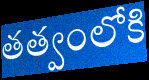
తత్వంలోకి